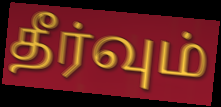
தீர்வும்